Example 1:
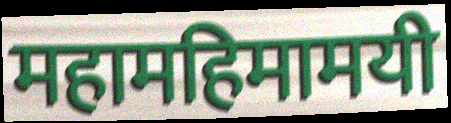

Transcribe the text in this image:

महामहिमामयी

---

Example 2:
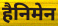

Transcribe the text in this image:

हैनिमेन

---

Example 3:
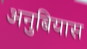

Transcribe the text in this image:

अनुबियास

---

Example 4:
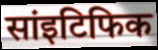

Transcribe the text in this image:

सांइटिफिक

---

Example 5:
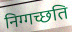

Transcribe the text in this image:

निग्गच्छति